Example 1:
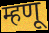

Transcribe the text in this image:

म्हणू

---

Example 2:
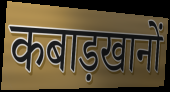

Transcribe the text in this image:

कबाड़खानों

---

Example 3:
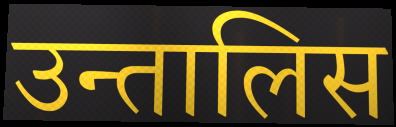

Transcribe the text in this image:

उन्तालिस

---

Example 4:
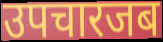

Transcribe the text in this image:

उपचारजब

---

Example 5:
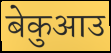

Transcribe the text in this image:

बेकुआउ